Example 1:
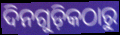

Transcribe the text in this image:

ଦିନଗୁଡ଼ିକଠାରୁ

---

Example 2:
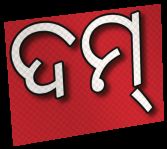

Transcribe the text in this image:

ଦମ୍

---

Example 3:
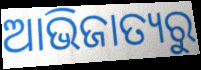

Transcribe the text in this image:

ଆଭିଜାତ୍ୟରୁ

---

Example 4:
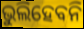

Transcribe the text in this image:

ଭୁଲିହେବନି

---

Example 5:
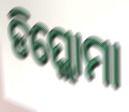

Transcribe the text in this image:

ଡିପ୍ଲୋମା